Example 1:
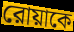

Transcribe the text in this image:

রোয়াকে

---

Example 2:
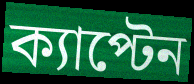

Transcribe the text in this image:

ক্যাপ্টেন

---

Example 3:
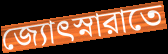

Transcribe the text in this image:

জ্যোৎস্নারাতে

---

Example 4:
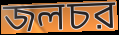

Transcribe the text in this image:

জলচর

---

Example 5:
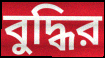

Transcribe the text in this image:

বুদ্ধির